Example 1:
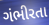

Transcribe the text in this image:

ગંભીરતા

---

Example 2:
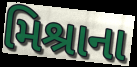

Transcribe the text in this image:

મિશ્રાના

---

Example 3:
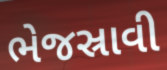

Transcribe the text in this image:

ભેજસ્રાવી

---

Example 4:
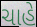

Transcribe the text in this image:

ચાહે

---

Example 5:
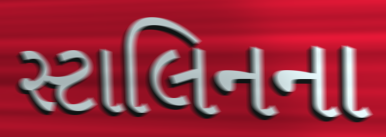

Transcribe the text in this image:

સ્ટાલિનના